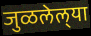
जुळलेल्या